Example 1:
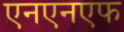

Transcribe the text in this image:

एनएनएफ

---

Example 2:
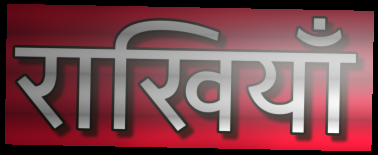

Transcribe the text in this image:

राखियाँ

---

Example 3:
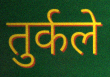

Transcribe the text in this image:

तुर्कले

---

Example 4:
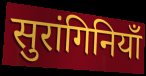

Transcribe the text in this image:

सुरांगिनियाँ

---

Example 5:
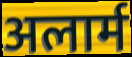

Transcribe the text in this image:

अलार्म